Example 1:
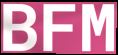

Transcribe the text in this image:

BFM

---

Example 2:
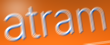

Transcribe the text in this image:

atram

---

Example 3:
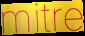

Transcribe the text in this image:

mitre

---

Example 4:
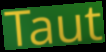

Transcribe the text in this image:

Taut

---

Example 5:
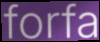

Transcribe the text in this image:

forfa